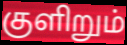
குளிறும்